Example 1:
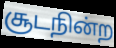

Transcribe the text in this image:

சூடநின்ற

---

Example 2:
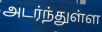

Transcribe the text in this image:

அடர்ந்துள்ள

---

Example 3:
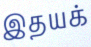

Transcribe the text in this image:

இதயக்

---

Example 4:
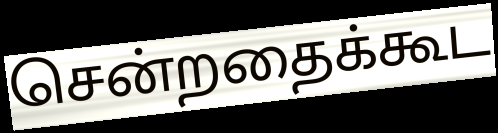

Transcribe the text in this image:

சென்றதைக்கூட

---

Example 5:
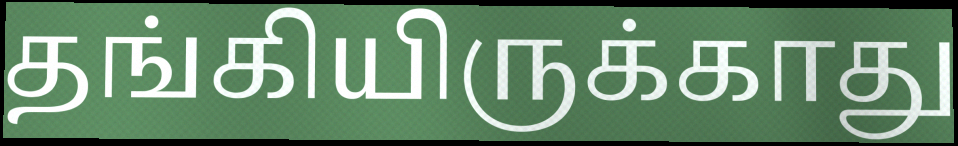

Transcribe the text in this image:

தங்கியிருக்காது